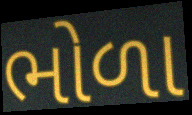
ભોળા